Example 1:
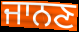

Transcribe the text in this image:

ਜਾਨਣ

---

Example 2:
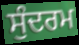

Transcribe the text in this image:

ਸੁੰਦਰਮ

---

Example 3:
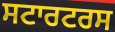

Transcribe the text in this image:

ਸਟਾਰਟਰਸ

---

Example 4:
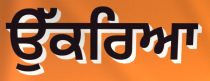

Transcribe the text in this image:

ਉੱਕਰਿਆ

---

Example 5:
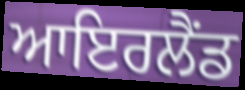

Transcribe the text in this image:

ਆਇਰਲੈੰਡ